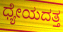
ಧ್ಯೇಯದತ್ತ